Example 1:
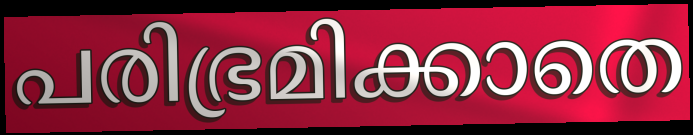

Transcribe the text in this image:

പരിഭ്രമിക്കാതെ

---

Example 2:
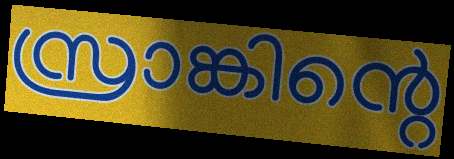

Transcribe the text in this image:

സ്രാങ്കിന്റെ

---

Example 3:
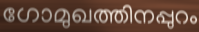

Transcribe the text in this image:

ഗോമുഖത്തിനപ്പുറം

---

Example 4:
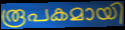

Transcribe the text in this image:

രൂപകമായി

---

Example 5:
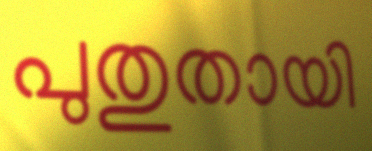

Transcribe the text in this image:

പുതുതായി